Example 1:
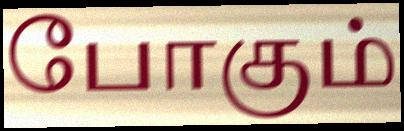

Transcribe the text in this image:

போகும்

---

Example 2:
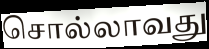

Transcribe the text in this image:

சொல்லாவது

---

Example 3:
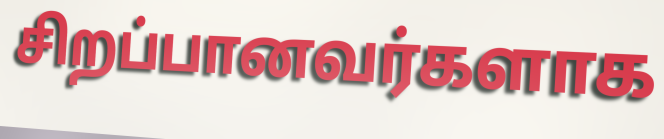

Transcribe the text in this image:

சிறப்பானவர்களாக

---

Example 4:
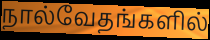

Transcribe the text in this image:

நால்வேதங்களில்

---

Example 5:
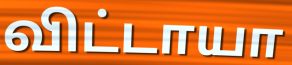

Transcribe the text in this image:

விட்டாயா